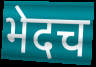
भेदच